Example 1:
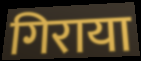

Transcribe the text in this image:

गिराया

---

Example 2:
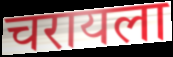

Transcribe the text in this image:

चरायला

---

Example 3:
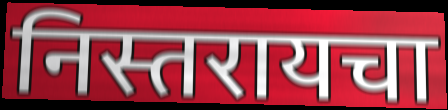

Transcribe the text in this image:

निस्तरायचा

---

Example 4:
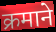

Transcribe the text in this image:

क्रमाने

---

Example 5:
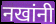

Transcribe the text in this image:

नखांनी